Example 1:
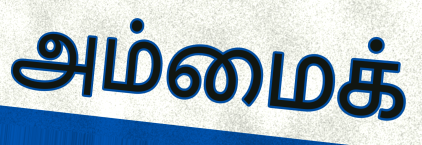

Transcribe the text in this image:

அம்மைக்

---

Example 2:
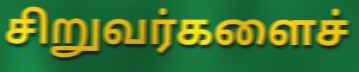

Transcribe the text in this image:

சிறுவர்களைச்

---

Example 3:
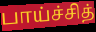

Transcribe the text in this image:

பாய்ச்சித்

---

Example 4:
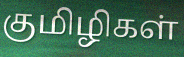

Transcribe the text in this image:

குமிழிகள்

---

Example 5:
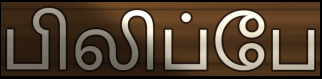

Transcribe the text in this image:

பிலிப்பே